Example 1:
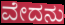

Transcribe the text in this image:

ವೇದನು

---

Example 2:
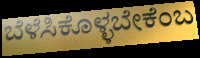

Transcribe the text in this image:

ಬೆಳೆಸಿಕೊಳ್ಳಬೇಕೆಂಬ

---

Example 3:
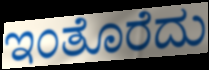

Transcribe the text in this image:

ಇಂತೊರೆದು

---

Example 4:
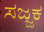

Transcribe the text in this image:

ಸಜ್ಜಕ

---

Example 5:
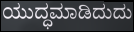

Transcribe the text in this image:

ಯುದ್ಧಮಾಡಿದುದು